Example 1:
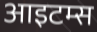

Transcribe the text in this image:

आइटम्स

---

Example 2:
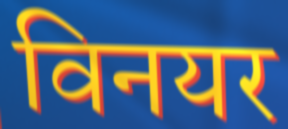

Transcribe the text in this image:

विनयर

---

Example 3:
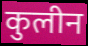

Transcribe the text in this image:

कुलीन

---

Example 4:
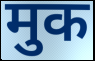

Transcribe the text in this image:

मुक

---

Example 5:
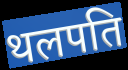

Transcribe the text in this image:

थलपति